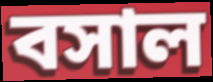
বসাল